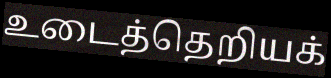
உடைத்தெறியக்